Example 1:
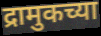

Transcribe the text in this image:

द्रामुकच्या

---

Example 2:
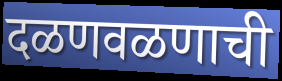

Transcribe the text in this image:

दळणवळणाची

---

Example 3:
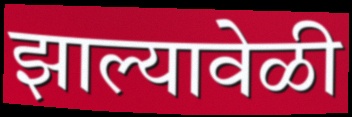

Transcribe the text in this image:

झाल्यावेळी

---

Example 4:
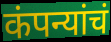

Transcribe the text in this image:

कंपन्यांचं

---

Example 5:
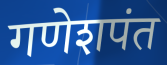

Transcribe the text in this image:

गणेशपंत